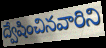
ద్వేషించినవారిని